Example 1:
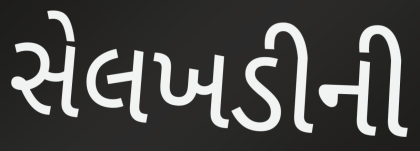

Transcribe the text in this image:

સેલખડીની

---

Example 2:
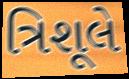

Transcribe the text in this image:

ત્રિશૂલે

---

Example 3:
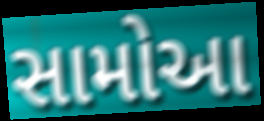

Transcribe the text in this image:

સામોઆ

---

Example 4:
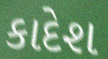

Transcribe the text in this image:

કાદેશ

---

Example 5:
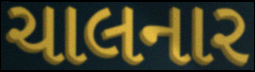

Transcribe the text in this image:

ચાલનાર